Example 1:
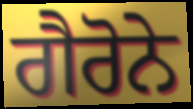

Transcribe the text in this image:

ਗੈਰੋਨੇ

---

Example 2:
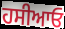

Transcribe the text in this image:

ਹਸੀਆਓ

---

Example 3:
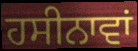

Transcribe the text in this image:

ਹਸੀਨਾਵਾਂ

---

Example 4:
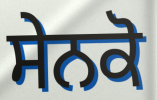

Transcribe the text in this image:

ਸੇਨਕੋ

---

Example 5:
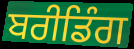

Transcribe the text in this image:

ਬਰੀਡਿੰਗ